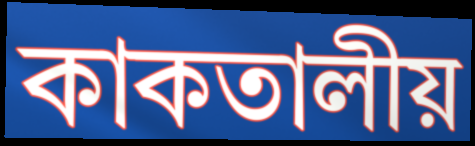
কাকতালীয়